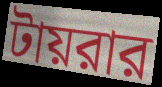
টায়রার